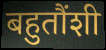
बहुतौंशी